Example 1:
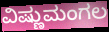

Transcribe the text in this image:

ವಿಷ್ಣುಮಂಗಲ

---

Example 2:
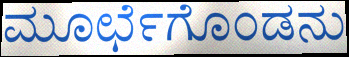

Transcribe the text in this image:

ಮೂರ್ಛೆಗೊಂಡನು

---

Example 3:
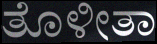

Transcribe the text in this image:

ತೊಳೀತಾ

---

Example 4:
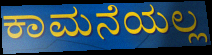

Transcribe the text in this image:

ಕಾಮನೆಯಲ್ಲ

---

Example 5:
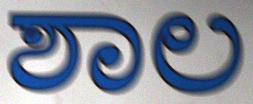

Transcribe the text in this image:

ಶಾಲ